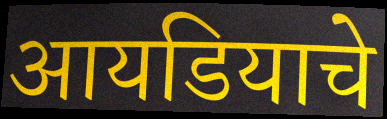
आयडियाचे